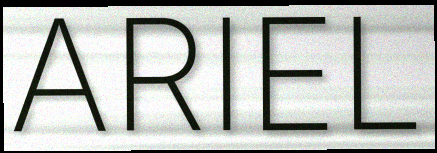
ARIEL